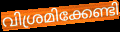
വിശ്രമിക്കേണ്ടി